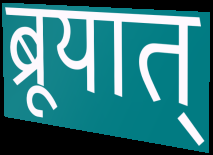
ब्रूयात्